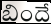
బిందే